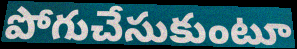
పోగుచేసుకుంటూ